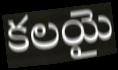
కలయై